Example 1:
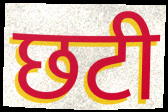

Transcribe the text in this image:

छटी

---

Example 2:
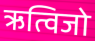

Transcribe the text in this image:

ऋत्विजो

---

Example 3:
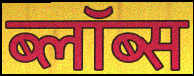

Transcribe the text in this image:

ब्लॉब्स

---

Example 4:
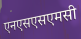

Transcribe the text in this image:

एनएसएसएमसी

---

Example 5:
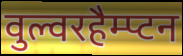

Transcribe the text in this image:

वुल्वरहैम्प्टन